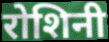
रोशिनी